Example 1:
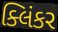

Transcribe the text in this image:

ક્લિંકર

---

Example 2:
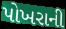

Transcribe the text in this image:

પોખરાની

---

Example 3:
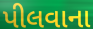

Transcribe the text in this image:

પીલવાના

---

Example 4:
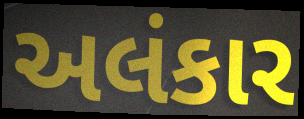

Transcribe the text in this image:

અલંકાર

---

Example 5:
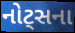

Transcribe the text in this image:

નોટ્સના